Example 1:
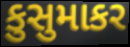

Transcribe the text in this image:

કુસુમાકર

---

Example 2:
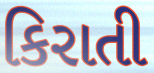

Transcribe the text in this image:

કિરાતી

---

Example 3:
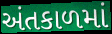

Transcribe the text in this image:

અંતકાળમાં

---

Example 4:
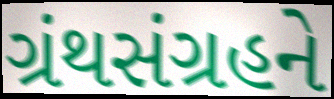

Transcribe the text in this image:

ગ્રંથસંગ્રહને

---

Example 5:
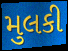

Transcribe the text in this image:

મુલકી